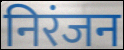
निरंजन